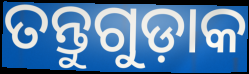
ତନ୍ତୁଗୁଡ଼ାକ